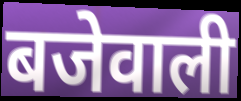
बजेवाली